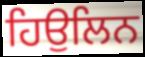
ਹਿਉਲਿਨ